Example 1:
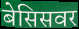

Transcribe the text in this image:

बेसिसवर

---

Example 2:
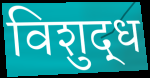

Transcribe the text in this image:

विशुद्ध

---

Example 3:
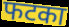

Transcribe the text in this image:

फटका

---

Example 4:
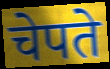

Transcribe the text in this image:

चेपते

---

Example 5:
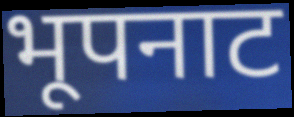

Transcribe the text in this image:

भूपनाट